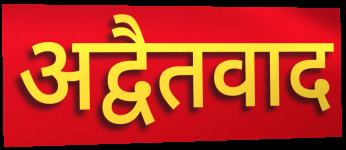
अद्वैतवाद